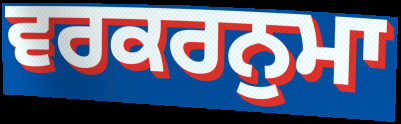
ਵਰਕਰਨੁਮਾ